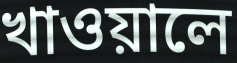
খাওয়ালে